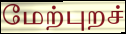
மேற்புறச்